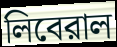
লিবেরাল